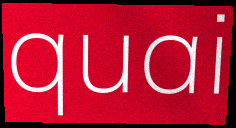
quai